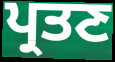
ਪ੍ਰਤਣ